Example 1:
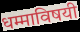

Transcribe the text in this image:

धम्माविषयी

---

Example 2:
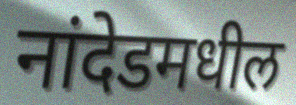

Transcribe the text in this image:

नांदेडमधील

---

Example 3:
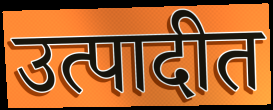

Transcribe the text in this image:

उत्पादीत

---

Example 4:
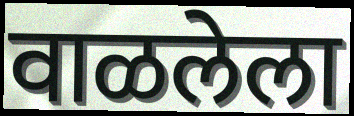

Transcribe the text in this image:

वाळलेला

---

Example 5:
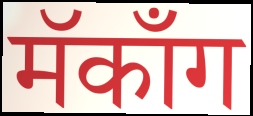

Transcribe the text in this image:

मॅकाँग